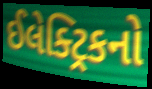
ઈલેક્ટ્રિકનો